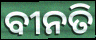
ବୀନତି